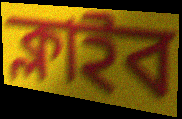
ক্লাইব